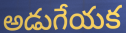
అడుగేయక